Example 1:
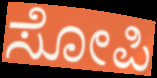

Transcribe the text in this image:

ಸೋಪಿ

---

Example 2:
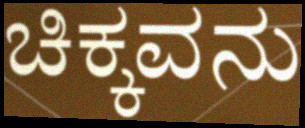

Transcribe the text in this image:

ಚಿಕ್ಕವನು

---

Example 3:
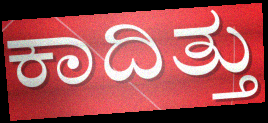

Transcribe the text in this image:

ಕಾದಿತ್ತು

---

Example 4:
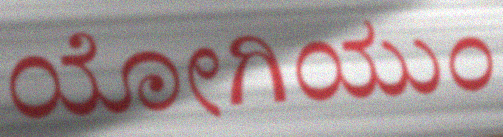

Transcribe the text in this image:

ಯೋಗಿಯುಂ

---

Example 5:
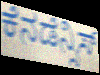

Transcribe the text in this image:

ಕೆನಡೆನ್ಸಿಸ್